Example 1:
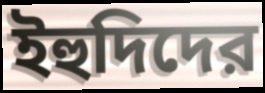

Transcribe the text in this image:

ইহুদিদের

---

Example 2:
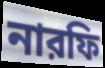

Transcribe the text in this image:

নারফি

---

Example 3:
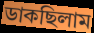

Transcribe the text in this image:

ডাকছিলাম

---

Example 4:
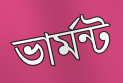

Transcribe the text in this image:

ভার্মন্ট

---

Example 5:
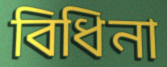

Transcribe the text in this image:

বিধিনা